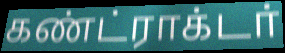
கண்ட்ராக்டர்